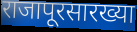
राजापूरसारख्या